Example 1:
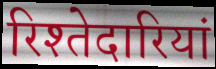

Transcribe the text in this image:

रिश्तेदारियां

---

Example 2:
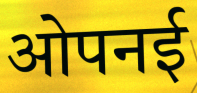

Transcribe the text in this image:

ओपनई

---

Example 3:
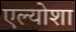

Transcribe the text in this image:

एल्योशा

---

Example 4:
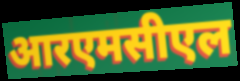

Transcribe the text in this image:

आरएमसीएल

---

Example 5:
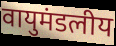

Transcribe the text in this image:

वायुमंडलीय